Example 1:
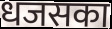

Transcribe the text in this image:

धजसका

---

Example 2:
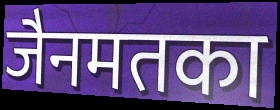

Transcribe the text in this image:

जैनमतका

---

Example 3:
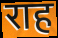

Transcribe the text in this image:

राह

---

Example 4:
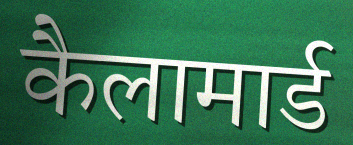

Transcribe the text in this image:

कैलामार्ड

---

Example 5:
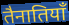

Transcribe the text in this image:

तैनातियाँ